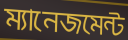
ম্যানেজমেন্ট